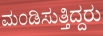
ಮಂಡಿಸುತ್ತಿದ್ದರು